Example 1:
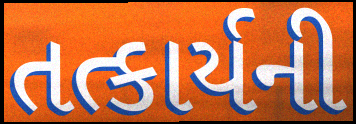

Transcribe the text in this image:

તત્કાર્યની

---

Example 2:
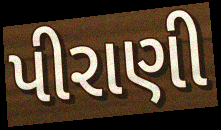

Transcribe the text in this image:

પીરાણી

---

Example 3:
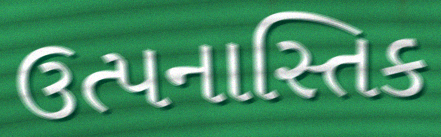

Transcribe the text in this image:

ઉત્પનાસ્તિક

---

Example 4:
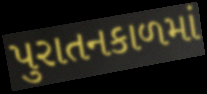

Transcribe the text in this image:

પુરાતનકાળમાં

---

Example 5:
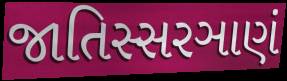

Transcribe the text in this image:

જાતિસ્સરઞાણં